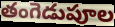
తంగెడుపూల